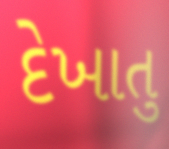
દેખાતુ